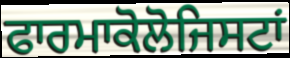
ਫਾਰਮਾਕੋਲੋਜਿਸਟਾਂ